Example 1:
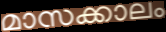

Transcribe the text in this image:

മാസക്കാലം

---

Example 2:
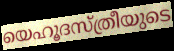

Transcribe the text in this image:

യെഹൂദസ്ത്രീയുടെ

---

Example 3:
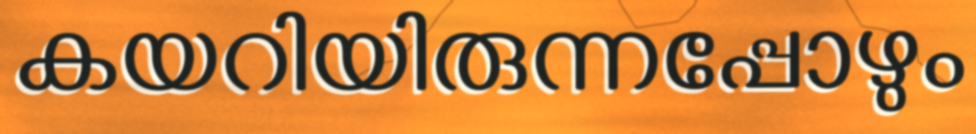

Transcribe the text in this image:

കയറിയിരുന്നപ്പോഴും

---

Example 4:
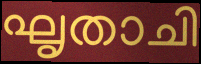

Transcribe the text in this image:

ഘൃതാചി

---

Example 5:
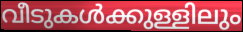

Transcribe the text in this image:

വീടുകൾക്കുള്ളിലും